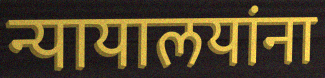
न्यायालयांना